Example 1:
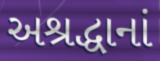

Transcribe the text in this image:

અશ્રદ્ધાનાં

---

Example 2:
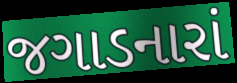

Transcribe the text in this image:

જગાડનારાં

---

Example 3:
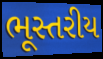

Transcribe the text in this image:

ભૂસ્તરીય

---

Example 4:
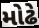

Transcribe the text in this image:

મોઢે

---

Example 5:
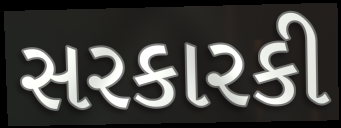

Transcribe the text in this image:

સરકારકી